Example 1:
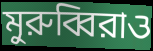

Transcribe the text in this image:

মুরুব্বিরাও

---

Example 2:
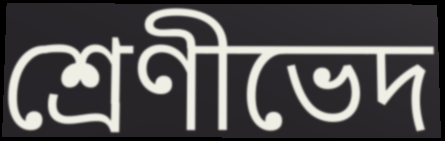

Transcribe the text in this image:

শ্রেণীভেদ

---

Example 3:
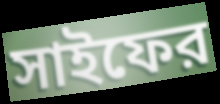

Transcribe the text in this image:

সাইফের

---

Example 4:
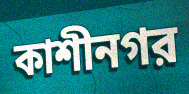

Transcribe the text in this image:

কাশীনগর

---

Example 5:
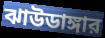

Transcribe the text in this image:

ঝাউডাঙ্গার